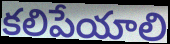
కలిపేయాలి